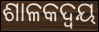
ଶାଳକଦ୍ୱୟ